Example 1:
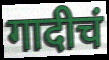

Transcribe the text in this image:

गादीचं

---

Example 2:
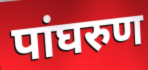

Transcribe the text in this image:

पांघरुण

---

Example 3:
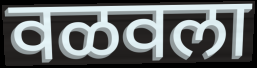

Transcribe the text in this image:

वळवला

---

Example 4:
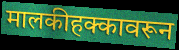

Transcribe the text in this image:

मालकीहक्कावरून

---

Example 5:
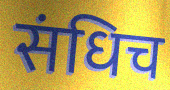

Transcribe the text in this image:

संधिच